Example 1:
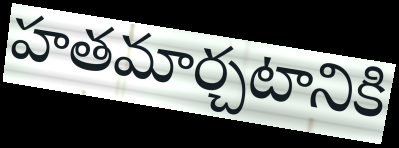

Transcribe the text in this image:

హతమార్చటానికి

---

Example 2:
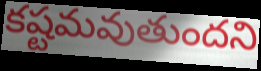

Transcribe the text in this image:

కష్టమవుతుందని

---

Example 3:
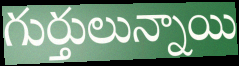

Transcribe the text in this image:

గుర్తులున్నాయి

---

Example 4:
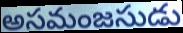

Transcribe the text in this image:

అసమంజసుడు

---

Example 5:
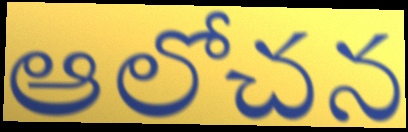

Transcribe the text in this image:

ఆలోచన